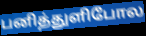
பனித்துளிபோல